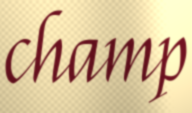
champ